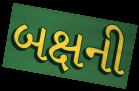
બક્ષની